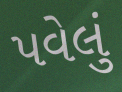
પવેલું